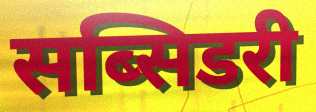
सब्सिडरी